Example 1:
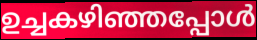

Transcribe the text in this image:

ഉച്ചകഴിഞ്ഞപ്പോൾ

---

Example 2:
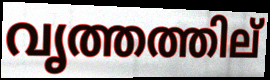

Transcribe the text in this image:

വൃത്തത്തില്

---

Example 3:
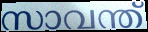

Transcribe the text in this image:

സാവന്ത്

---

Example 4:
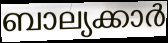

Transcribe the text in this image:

ബാല്യക്കാർ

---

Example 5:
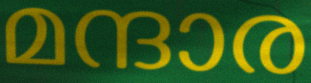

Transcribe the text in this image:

മന്ദാര